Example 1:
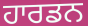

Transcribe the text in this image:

ਹਾਰਡਨ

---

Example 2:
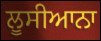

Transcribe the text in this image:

ਲੂਸੀਆਨਾ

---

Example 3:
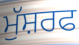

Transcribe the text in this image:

ਮੁੱਸ਼ਰਫ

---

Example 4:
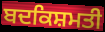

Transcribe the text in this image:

ਬਦਕਿਸ਼ਮਤੀ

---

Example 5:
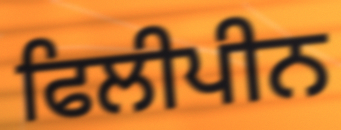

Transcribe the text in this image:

ਫਿਲੀਪੀਨ